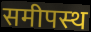
समीपस्थ